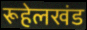
रूहेलखंड